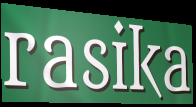
rasika